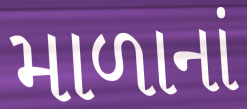
માળાનાં